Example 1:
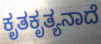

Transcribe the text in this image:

ಕೃತಕೃತ್ಯನಾದೆ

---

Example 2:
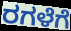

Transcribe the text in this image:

ರಗಳೆಗೆ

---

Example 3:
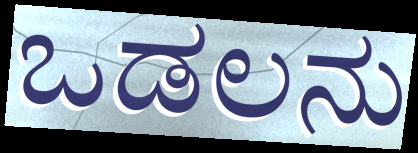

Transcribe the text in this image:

ಒಡಲನು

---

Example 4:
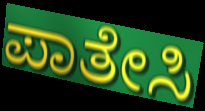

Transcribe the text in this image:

ಪಾತೇಸಿ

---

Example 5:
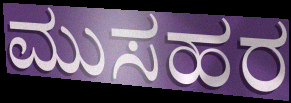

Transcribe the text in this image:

ಮುಸಹರ